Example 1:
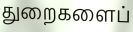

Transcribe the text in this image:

துறைகளைப்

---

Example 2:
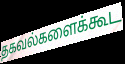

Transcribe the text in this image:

தகவல்களைக்கூட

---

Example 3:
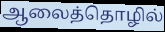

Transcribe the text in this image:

ஆலைத்தொழில்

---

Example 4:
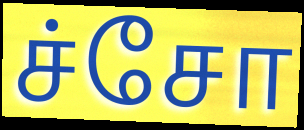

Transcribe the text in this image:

ச்சோ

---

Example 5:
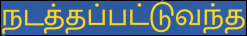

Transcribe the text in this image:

நடத்தப்பட்டுவந்த